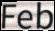
Feb